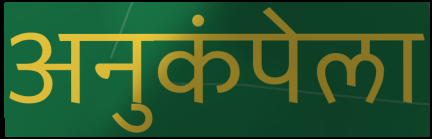
अनुकंपेला